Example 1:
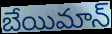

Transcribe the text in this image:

బేయిమాన్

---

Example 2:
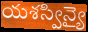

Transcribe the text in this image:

యశస్విన్యై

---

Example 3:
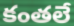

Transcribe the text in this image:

కంతలే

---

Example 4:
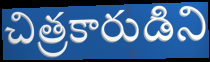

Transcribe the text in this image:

చిత్రకారుడిని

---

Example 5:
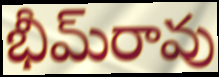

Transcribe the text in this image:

భీమ్‌రావు